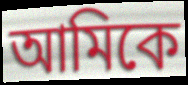
আমিকে